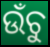
ଉଁଚୁ